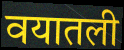
वयातली